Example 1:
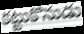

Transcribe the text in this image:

కట్టుకొనుడు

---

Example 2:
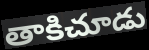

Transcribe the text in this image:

తాకిచూడు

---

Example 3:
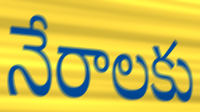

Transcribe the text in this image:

నేరాలకు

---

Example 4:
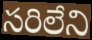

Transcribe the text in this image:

సరిలేని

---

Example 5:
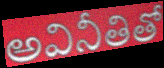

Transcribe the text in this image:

అవినీతితో